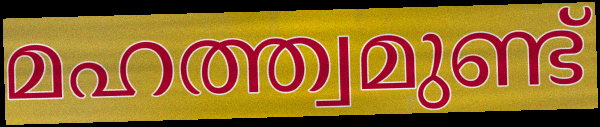
മഹത്ത്വമുണ്ട്